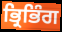
ਭ੍ਰਿਭਿੰਗ